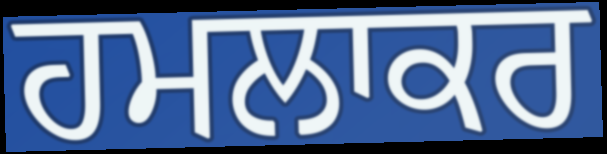
ਹਮਲਾਕਰ